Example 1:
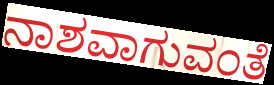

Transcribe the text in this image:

ನಾಶವಾಗುವಂತೆ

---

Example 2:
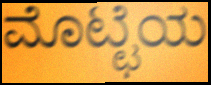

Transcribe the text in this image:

ಮೊಟ್ಟೆಯ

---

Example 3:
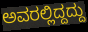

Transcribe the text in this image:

ಅವರಲ್ಲಿದ್ದದ್ದು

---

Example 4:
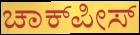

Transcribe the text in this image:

ಚಾಕ್‌ಪೀಸ್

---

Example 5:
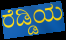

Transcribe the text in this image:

ರೆಡ್ಡಿಯ